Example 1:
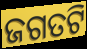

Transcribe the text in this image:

ଜଗତଟି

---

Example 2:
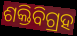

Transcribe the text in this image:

ଶକ୍ତିବିଗ୍ରହ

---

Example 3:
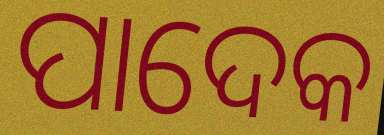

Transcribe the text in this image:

ପାଦେକ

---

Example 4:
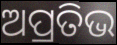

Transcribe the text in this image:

ଅପ୍ରତିଭ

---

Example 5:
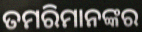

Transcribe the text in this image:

ତମରିମାନଙ୍କର